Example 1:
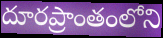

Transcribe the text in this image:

దూరప్రాంతంలోని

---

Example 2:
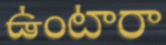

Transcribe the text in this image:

ఉంటారా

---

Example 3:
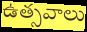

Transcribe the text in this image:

ఉత్సవాలు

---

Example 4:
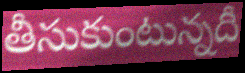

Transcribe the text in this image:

తీసుకుంటున్నదీ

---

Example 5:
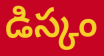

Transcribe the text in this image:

డిస్కం